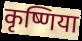
कृष्णिया